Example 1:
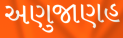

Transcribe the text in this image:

અણુજાણહ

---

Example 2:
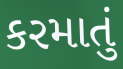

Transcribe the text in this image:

કરમાતું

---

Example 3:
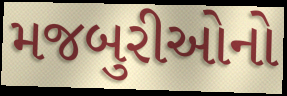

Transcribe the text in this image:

મજબુરીઓનો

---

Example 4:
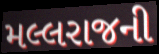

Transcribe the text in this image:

મલ્લરાજની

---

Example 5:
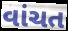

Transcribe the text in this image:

વાંચત